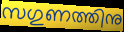
സഗുണത്തിനു